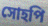
সোহপি